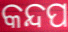
କନ୍ଦପ